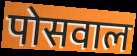
पोसवाल